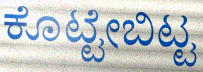
ಕೊಟ್ಟೇಬಿಟ್ಟ